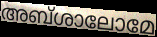
അബ്ശാലോമേ